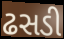
ઢસડી